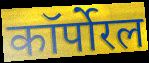
कॉर्पोरल